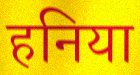
हनिया